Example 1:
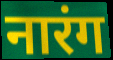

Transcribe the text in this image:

नारंग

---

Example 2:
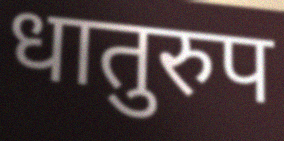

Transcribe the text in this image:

धातुरुप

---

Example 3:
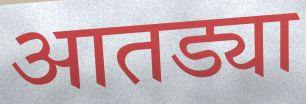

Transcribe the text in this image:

आतड्या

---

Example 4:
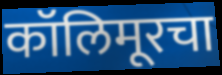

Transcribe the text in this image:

कॉलिमूरचा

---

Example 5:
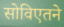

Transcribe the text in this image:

सोविएतने